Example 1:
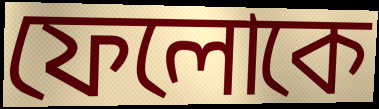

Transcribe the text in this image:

ফেলোকে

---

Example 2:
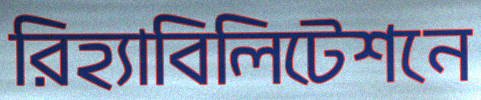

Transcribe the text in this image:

রিহ্যাবিলিটেশনে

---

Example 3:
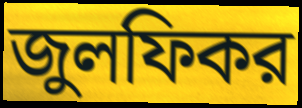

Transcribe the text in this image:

জুলফিকর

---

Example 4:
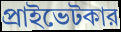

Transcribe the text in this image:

প্রাইভেটকার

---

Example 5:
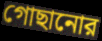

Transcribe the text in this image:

গোছানোর